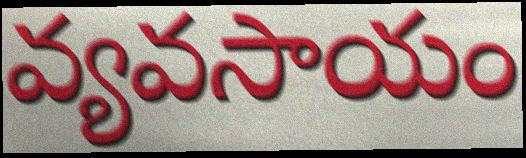
వ్యవసాయం